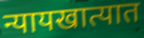
न्यायखात्यात